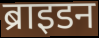
ब्राइडन